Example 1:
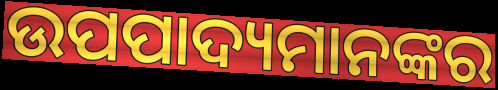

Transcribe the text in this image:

ଉପପାଦ୍ୟମାନଙ୍କର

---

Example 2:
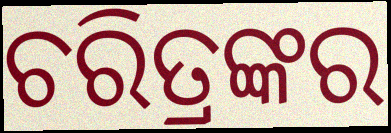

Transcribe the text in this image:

ଚରିତ୍ରଙ୍କର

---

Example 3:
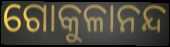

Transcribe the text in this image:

ଗୋକୁଳାନନ୍ଦ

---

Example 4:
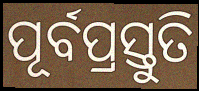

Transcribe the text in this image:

ପୂର୍ବପ୍ରସ୍ତୁତି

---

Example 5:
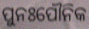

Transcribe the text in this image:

ପୁନଃପୌନିକ